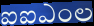
ఐఐఎంల